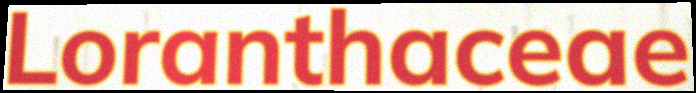
Loranthaceae